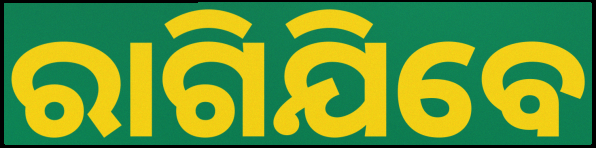
ରାଗିଯିବେ